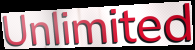
Unlimited